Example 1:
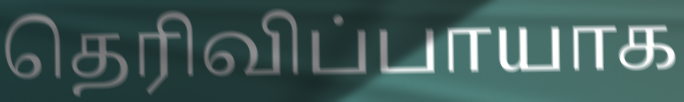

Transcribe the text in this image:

தெரிவிப்பாயாக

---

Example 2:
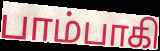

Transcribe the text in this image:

பாம்பாகி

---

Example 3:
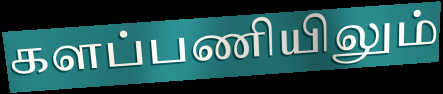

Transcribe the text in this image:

களப்பணியிலும்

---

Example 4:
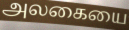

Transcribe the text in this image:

அலகையை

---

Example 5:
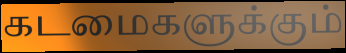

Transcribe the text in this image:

கடமைகளுக்கும்